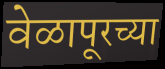
वेळापूरच्या